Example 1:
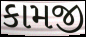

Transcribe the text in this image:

કામજી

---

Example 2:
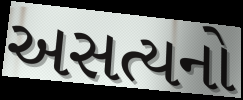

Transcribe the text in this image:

અસત્યનો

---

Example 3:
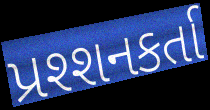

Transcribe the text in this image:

પ્રશ્શનકર્તા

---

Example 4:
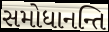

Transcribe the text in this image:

સમોધાનન્તિ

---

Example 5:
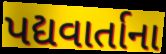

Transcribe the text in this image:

પદ્યવાર્તાના